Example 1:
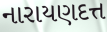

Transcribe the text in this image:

નારાયણદત્ત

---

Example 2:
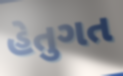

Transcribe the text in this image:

હેતુગત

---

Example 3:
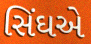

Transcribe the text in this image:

સિંઘએ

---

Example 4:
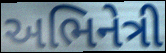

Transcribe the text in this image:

અભિનેત્રી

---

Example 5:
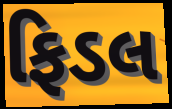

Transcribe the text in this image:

ફિડલ